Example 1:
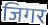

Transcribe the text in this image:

जिगर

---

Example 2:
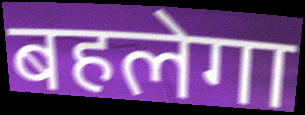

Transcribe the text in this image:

बहलेगा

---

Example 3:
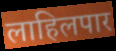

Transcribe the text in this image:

लाहिलपार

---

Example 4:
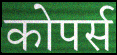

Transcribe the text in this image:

कोपर्स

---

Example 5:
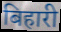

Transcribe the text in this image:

बिहारी